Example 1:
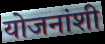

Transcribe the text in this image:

योजनांशी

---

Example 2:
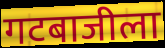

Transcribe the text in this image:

गटबाजीला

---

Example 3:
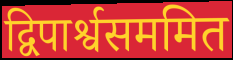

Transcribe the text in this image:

द्विपार्श्वसममित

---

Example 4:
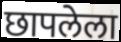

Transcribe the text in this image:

छापलेला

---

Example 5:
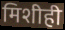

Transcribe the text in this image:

मिशीही